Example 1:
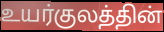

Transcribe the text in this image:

உயர்குலத்தின்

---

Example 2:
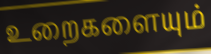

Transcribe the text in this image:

உறைகளையும்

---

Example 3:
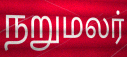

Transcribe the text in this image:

நறுமலர்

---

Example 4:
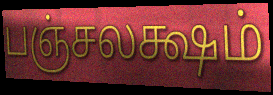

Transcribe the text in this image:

பஞ்சலக்ஷம்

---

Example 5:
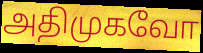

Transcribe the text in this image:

அதிமுகவோ